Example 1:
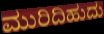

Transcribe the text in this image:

ಮುರಿದಿಹುದು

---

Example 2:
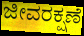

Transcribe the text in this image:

ಜೀವರಕ್ಷಣೆ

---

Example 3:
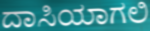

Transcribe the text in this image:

ದಾಸಿಯಾಗಲಿ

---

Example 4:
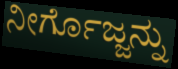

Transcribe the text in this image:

ನೀರ್ಗೊಜ್ಜನ್ನು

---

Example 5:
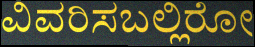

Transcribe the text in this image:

ವಿವರಿಸಬಲ್ಲಿರೋ